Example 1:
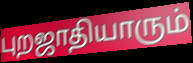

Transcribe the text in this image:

புறஜாதியாரும்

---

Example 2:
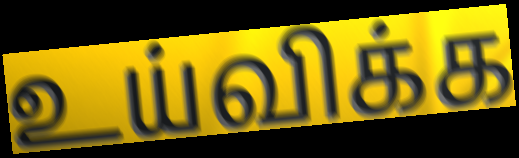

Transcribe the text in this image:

உய்விக்க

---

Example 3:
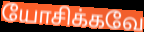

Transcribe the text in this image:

யோசிக்கவே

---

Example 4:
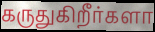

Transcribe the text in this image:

கருதுகிறீர்களா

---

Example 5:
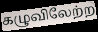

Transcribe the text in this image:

கழுவிலேற்ற